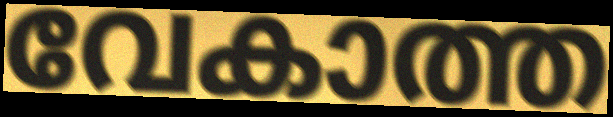
വേകാത്ത